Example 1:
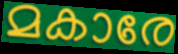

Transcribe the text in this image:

മകാരേ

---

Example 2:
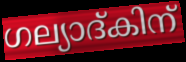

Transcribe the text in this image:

ഗല്യാദ്കിന്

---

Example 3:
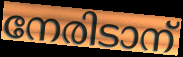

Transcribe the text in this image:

നേരിടാന്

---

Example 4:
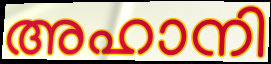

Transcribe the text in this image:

അഹാനി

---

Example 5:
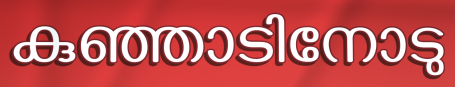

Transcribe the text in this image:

കുഞ്ഞാടിനോടു